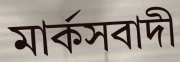
মার্কসবাদী